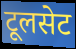
टूलसेट